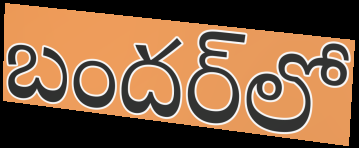
బందర్‌లో